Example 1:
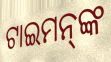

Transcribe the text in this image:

ଟାଇମନ୍‌ଙ୍କ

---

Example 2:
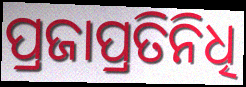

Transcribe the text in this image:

ପ୍ରଜାପ୍ରତିନିଧି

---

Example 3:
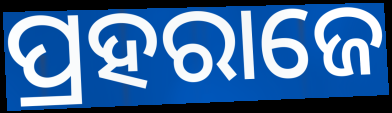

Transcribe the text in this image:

ପ୍ରହରାଜେ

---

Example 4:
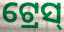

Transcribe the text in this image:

ଟ୍ରେସ୍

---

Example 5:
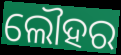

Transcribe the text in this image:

ଲୌହର